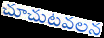
చూచుటవలన